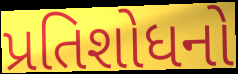
પ્રતિશોધનો